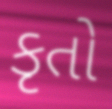
કૃતો